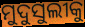
ମୁଦୁସୁଲୀକୁ